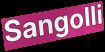
Sangolli